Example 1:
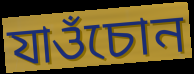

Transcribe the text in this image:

যাওঁচোন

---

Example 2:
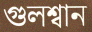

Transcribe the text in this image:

গুলশ্বান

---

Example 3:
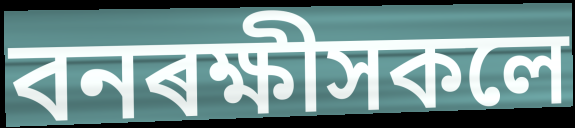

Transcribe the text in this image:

বনৰক্ষীসকলে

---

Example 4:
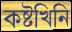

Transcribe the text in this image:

কষ্টখিনি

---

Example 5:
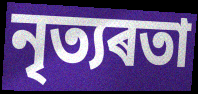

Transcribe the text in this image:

নৃত্যৰতা